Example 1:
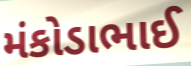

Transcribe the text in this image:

મંકોડાભાઈ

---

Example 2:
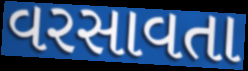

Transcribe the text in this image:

વરસાવતા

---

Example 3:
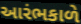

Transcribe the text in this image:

આરંભકાળે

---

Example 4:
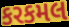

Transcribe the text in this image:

કરકમલ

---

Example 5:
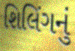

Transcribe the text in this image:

શિલિંગનું